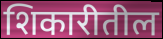
शिकारीतील